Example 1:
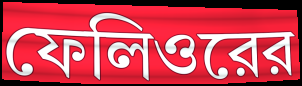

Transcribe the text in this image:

ফেলিওরের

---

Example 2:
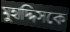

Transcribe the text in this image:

মুহাদ্দিসকে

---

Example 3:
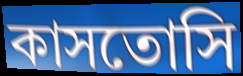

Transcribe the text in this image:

কাসতোসি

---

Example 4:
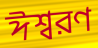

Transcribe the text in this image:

ঈশ্বরণ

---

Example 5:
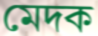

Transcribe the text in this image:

মেদক